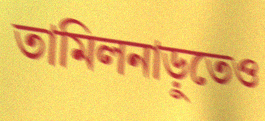
তামিলনাড়ুতেও